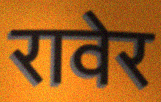
रावेर